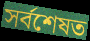
সৰ্বশেষত